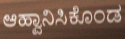
ಆಹ್ವಾನಿಸಿಕೊಂಡ